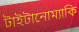
টাইটানোম্যাকি